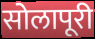
सोलापूरी